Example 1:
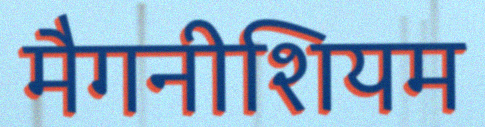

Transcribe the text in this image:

मैगनीशियम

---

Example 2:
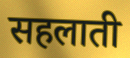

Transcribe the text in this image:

सहलाती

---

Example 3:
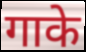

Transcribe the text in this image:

गाके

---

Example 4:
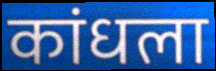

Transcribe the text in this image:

कांधला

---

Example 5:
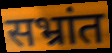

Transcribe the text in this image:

सभ्रांत